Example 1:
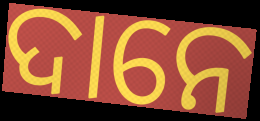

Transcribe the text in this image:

ଦାନେ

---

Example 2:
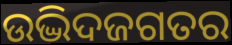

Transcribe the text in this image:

ଉଦ୍ଭିଦଜଗତର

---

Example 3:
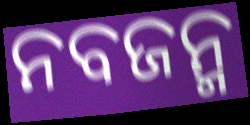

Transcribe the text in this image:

ନବଜନ୍ମ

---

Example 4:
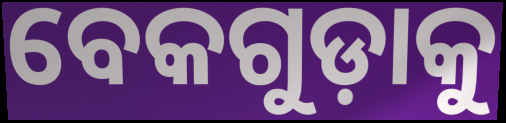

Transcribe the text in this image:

ବେକଗୁଡ଼ାକୁ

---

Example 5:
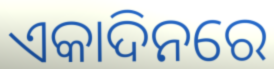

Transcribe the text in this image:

ଏକାଦିନରେ